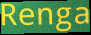
Renga